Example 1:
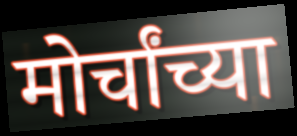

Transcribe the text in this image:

मोर्चांच्या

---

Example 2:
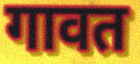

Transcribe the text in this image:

गावत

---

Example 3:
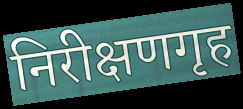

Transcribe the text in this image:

निरीक्षणगृह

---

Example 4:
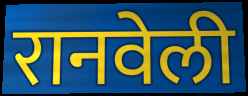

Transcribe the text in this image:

रानवेली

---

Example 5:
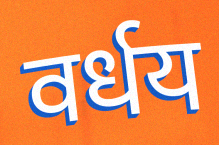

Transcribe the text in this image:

वर्धय